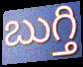
బుగ్తి